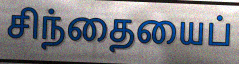
சிந்தையைப்